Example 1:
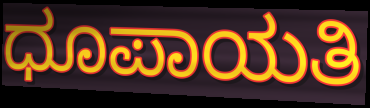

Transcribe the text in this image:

ಧೂಪಾಯತಿ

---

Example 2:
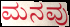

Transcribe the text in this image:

ಮನವು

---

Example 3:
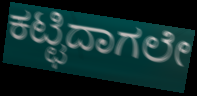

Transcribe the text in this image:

ಕಟ್ಟಿದಾಗಲೇ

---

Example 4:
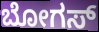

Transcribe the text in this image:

ಬೋಗಸ್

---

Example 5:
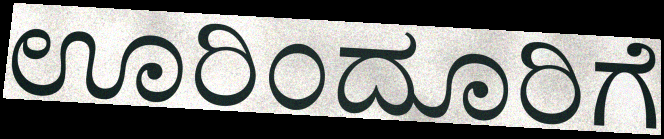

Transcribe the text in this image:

ಊರಿಂದೂರಿಗೆ